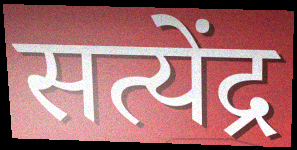
सत्येंद्र